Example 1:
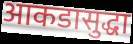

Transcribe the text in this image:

आकडासुद्धा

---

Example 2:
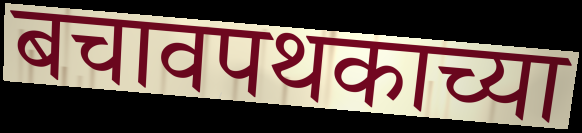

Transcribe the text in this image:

बचावपथकाच्या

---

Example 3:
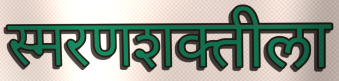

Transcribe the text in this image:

स्मरणशक्तीला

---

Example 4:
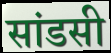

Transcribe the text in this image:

सांडसी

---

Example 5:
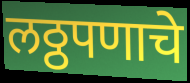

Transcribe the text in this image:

लठ्ठपणाचे